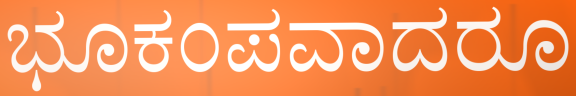
ಭೂಕಂಪವಾದರೂ